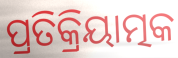
ପ୍ରତିକ୍ରିୟାତ୍ମକ